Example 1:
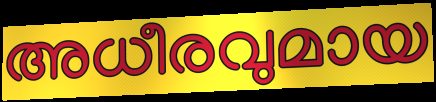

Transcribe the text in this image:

അധീരവുമായ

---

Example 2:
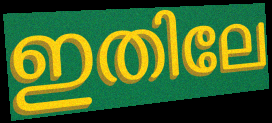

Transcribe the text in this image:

ഇതിലേ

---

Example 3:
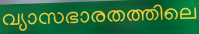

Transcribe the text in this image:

വ്യാസഭാരതത്തിലെ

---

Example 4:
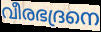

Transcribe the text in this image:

വീരഭദ്രനെ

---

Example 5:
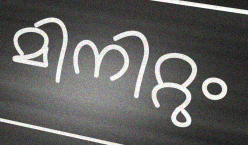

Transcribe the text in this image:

മിനിറ്റും